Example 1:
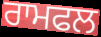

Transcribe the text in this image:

ਰਾਮਫਲ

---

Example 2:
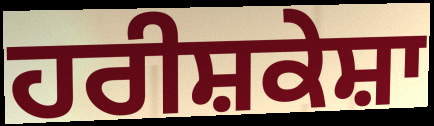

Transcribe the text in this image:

ਹਰੀਸ਼ਕੇਸ਼ਾ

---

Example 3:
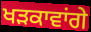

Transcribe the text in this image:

ਖੜਕਾਵਾਂਗੇ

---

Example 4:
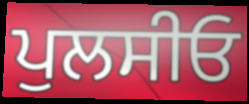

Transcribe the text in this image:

ਪੁਲਸੀਓ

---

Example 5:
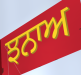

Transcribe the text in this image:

ਝਨਾਅ